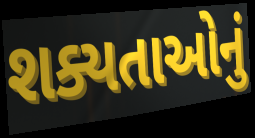
શક્યતાઓનું